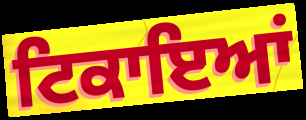
ਟਿਕਾਇਆਂ